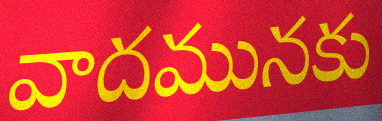
వాదమునకు